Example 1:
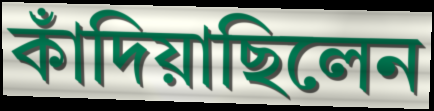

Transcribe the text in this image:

কাঁদিয়াছিলেন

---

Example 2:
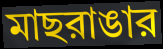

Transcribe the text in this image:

মাছরাঙার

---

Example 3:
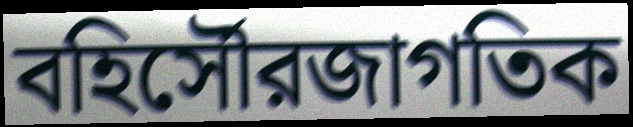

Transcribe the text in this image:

বহির্সৌরজাগতিক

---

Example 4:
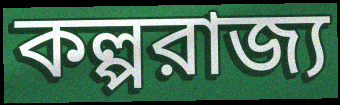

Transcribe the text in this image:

কল্পরাজ্য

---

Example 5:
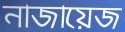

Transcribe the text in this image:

নাজায়েজ